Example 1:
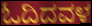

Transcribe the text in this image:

ಓದಿದವಳ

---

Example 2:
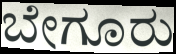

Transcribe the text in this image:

ಬೇಗೂರು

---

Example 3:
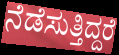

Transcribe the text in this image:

ನೆಡೆಸುತ್ತಿದ್ದರೆ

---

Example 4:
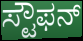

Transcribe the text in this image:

ಸ್ಟೌಫನ್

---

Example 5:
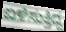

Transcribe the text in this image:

ಏಳಿಸುತ್ತಿದ್ದ